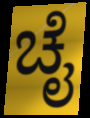
ಚೈ